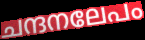
ചന്ദനലേപം